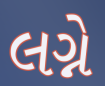
લગ્ને